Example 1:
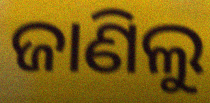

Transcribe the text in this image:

ଜାଣିଲୁ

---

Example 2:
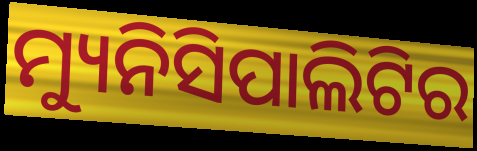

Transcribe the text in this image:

ମ୍ୟୁନିସିପାଲିଟିର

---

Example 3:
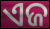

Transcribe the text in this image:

ଏଜ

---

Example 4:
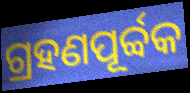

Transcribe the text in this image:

ଗ୍ରହଣପୂର୍ବ୍ବକ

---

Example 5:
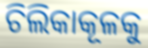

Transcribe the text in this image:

ଚିଲିକାକୂଳକୁ